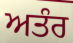
ਅਤੰਰ